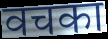
वचका